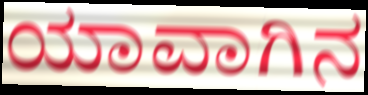
ಯಾವಾಗಿನ